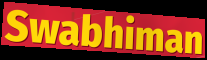
Swabhiman